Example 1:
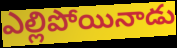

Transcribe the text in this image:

ఎల్లిపోయినాడు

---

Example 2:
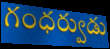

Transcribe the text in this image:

గంధర్వుడు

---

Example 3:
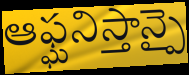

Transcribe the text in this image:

ఆఫ్ఘనిస్తాన్పై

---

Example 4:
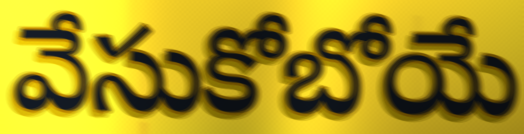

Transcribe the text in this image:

వేసుకోబోయే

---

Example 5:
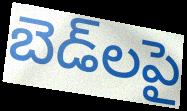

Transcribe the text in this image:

బెడ్‌లపై